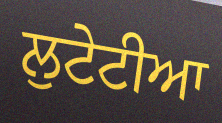
ਲੁਟੇਟੀਆ